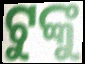
ଟୁଙ୍କୁ